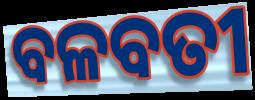
ବଳବତୀ